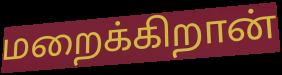
மறைக்கிறான்